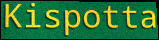
Kispotta